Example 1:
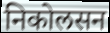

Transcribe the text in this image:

निकोलसन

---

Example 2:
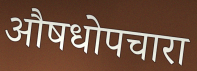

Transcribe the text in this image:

औषधोपचारा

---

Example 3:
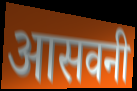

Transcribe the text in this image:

आसवनी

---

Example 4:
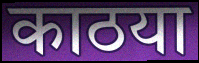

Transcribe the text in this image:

काठया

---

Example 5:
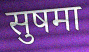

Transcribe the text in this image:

सुषमा